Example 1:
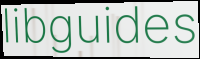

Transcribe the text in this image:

libguides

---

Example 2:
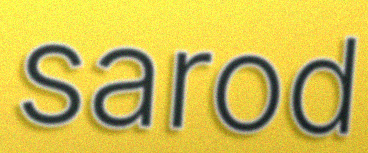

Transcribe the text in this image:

sarod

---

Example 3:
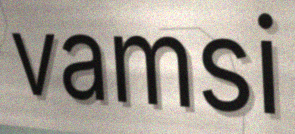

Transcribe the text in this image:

vamsi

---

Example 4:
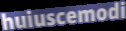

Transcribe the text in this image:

huiuscemodi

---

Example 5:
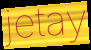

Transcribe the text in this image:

jetay